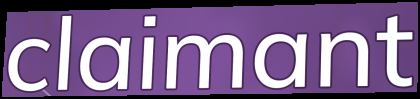
claimant